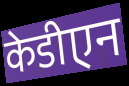
केडीएन